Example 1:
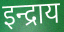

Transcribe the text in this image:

इन्द्राय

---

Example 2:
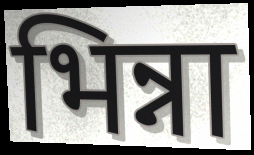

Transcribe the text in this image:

भिन्ना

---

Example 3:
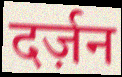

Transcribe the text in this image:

दर्ज़न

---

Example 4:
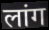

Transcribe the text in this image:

लांग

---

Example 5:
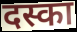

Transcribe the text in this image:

दस्का